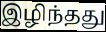
இழிந்தது